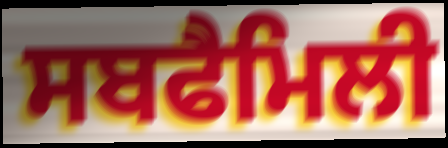
ਸਬਫੈਮਿਲੀ